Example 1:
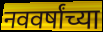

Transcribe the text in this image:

नववर्षांच्या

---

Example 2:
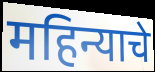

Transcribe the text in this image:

महिन्याचे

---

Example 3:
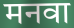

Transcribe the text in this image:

मनवा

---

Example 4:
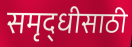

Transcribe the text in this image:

समृद्धीसाठी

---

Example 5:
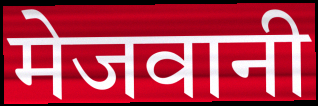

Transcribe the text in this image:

मेजवानी